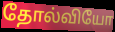
தோல்வியோ